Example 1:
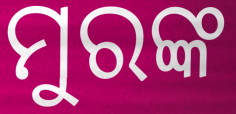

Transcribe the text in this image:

ମୁରଙ୍କ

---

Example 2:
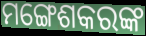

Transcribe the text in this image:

ମଙ୍ଗେଶକରଙ୍କ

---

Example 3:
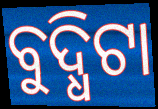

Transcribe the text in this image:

ବୁଦ୍ଧିଟା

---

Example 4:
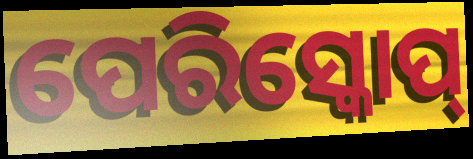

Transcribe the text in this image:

ପେରିସ୍କୋପ୍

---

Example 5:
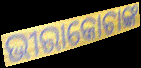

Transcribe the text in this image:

ଭୀରାକୋଚାଙ୍କ